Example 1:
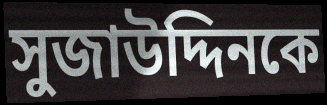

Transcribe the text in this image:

সুজাউদ্দিনকে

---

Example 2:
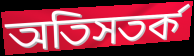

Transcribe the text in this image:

অতিসতর্ক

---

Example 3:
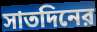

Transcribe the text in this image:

সাতদিনের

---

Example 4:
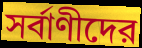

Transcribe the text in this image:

সর্বাণীদের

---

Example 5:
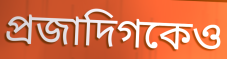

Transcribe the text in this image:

প্রজাদিগকেও